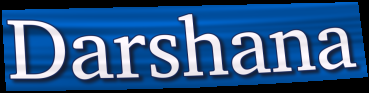
Darshana